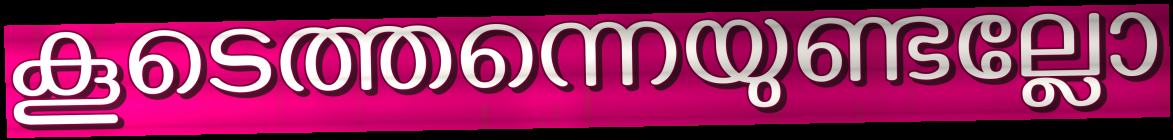
കൂടെത്തന്നെയുണ്ടല്ലോ